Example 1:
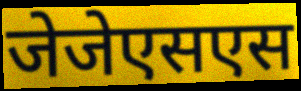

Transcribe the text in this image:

जेजेएसएस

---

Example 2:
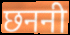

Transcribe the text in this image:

छननी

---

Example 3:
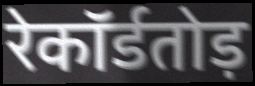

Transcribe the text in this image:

रेकॉर्डतोड़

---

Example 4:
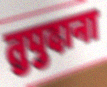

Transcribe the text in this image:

तुपुदाना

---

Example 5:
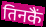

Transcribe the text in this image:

तिनकैं